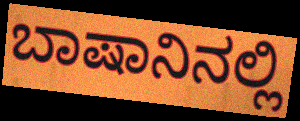
ಬಾಷಾನಿನಲ್ಲಿ